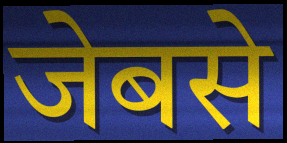
जेबसे